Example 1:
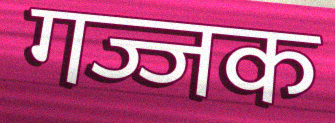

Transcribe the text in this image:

गज्जक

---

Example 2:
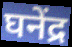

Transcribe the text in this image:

घनेंद्र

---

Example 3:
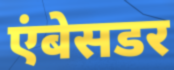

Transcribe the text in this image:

एंबेसडर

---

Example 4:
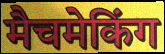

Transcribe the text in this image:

मैचमेकिंग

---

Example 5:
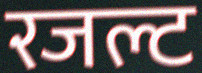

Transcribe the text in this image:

रजल्ट